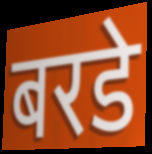
बरडे